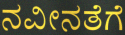
ನವೀನತೆಗೆ